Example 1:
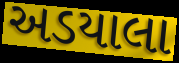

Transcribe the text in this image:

અડયાલા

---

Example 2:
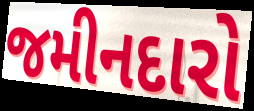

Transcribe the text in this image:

જમીનદારો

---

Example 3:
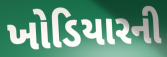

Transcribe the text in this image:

ખોડિયારની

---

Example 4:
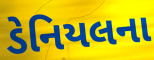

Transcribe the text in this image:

ડેનિયલના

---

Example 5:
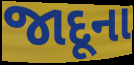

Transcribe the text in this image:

જાદૂના